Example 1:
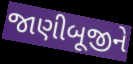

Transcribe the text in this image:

જાણીબૂજીને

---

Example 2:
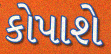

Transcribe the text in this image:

કોપાશે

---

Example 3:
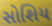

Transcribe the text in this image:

સોશિય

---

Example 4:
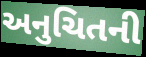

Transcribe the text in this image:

અનુચિતની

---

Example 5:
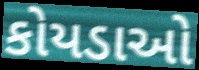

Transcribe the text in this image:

કોયડાઓ